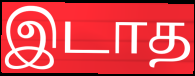
இடாத